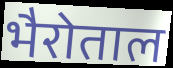
भैरोताल